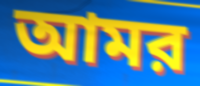
আমর